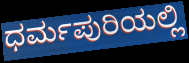
ಧರ್ಮಪುರಿಯಲ್ಲಿ